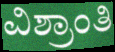
ವಿಶ್ರಾಂತಿ